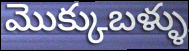
మొక్కుబళ్ళు